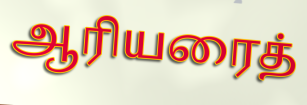
ஆரியரைத்